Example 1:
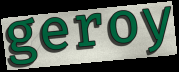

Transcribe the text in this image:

geroy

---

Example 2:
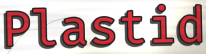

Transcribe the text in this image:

Plastid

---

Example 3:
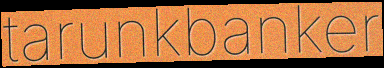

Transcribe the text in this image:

tarunkbanker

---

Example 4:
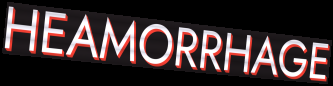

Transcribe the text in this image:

HEAMORRHAGE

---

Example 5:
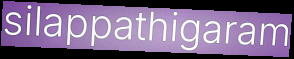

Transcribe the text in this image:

silappathigaram